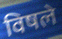
विषले